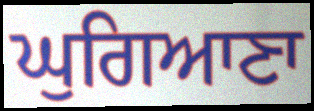
ਘੁਗਿਆਣਾ